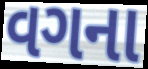
વગના